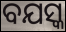
ବଯସ୍କ